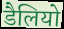
डैलियो